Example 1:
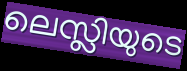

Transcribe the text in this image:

ലെസ്ലിയുടെ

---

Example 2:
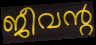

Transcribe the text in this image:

ജീവന്റ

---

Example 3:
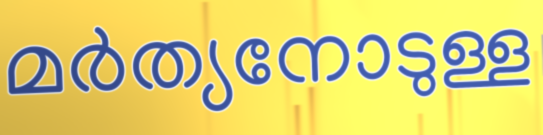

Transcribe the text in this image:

മർത്യനോടുള്ള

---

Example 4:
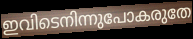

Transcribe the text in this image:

ഇവിടെനിന്നുപോകരുതേ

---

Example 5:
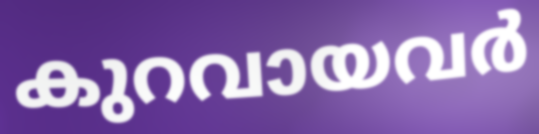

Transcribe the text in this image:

കുറവായവർ